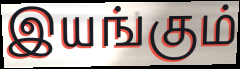
இயங்கும்